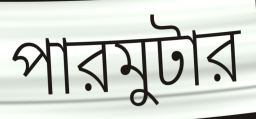
পারমুটার